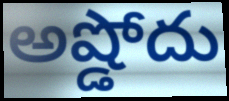
అష్డోదు